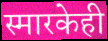
स्मारकेही